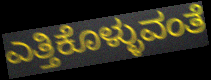
ಎತ್ತಿಕೊಳ್ಳುವಂತೆ